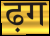
ढ़ग